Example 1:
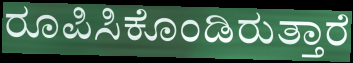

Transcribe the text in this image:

ರೂಪಿಸಿಕೊಂಡಿರುತ್ತಾರೆ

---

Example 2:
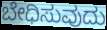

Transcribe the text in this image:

ಬೇಧಿಸುವುದು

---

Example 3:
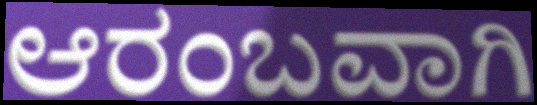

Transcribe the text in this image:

ಆರಂಬವಾಗಿ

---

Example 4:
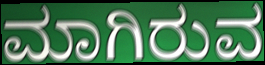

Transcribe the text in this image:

ಮಾಗಿರುವ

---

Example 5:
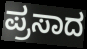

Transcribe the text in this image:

ಪ್ರಸಾದ